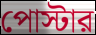
পোস্টার